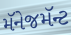
મૅનેજમૅન્ટ